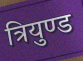
त्रियुण्ड